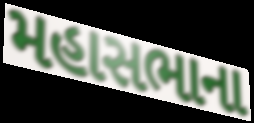
મહાસભાના